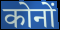
कोनों